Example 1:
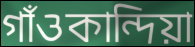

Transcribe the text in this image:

গাঁওকান্দিয়া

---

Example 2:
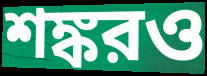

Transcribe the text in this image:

শঙ্করও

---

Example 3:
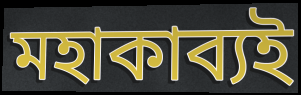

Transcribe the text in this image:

মহাকাব্যই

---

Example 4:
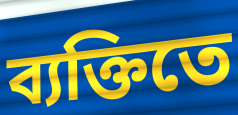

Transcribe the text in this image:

ব্যক্তিতে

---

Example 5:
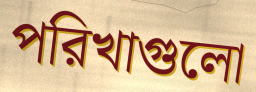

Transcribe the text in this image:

পরিখাগুলো